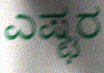
ಎಷ್ಟರ